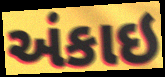
અંકાઇ